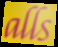
alls